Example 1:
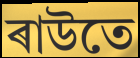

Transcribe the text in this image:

ৰাউতে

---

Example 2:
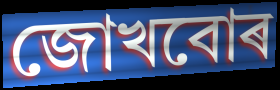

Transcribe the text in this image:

জোখবোৰ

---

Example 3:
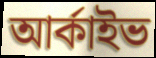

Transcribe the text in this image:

আৰ্কাইভ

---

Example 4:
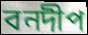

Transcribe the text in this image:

বনদীপ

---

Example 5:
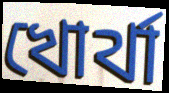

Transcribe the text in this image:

খোৰ্থা